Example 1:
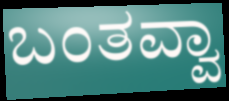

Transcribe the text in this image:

ಬಂತವ್ವಾ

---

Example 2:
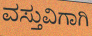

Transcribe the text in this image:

ವಸ್ತುವಿಗಾಗಿ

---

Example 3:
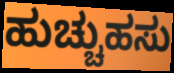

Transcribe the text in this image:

ಹುಚ್ಚುಹಸು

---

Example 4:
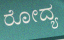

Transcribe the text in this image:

ರೋದ್ಯ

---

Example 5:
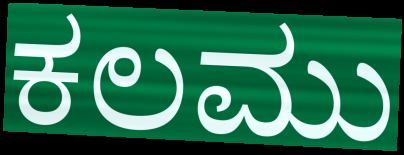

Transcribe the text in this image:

ಕಲಮು